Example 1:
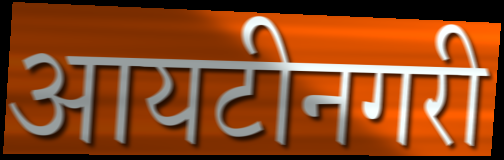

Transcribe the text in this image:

आयटीनगरी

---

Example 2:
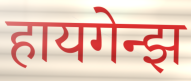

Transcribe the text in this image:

हायगेन्झ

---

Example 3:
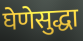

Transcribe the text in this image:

घेणेसुद्धा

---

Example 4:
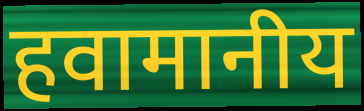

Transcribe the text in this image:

हवामानीय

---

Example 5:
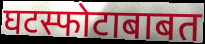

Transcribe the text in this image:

घटस्फोटाबाबत